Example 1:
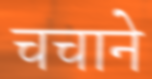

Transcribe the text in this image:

चचाने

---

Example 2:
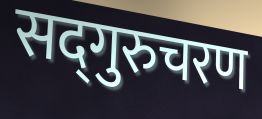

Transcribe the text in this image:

सद्‍गुरुचरण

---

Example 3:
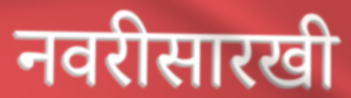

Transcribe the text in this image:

नवरीसारखी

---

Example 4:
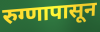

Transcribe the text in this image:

रुग्णापासून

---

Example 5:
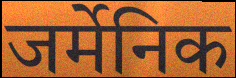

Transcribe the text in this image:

जर्मेनिक